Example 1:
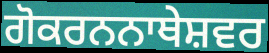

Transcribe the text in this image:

ਗੋਕਰਨਨਾਥੇਸ਼ਵਰ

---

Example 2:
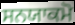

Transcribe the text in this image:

ਸਨਯਾਕਮੋ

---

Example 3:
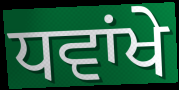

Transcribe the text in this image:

ਧਵਾਂਖੇ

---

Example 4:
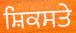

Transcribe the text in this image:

ਸ਼ਿਕਸਤੇ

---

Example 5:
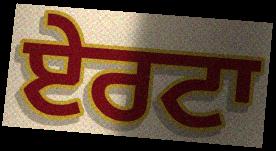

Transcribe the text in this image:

ਏਰਟਾ